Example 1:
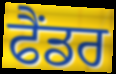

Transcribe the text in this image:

ਫੈਂਡਰ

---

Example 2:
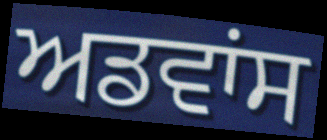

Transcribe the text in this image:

ਅਡਵਾਂਸ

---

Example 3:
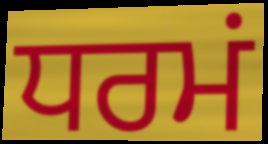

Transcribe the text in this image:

ਧਰਮਂ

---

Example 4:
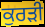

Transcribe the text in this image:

ਕੁਰੜੀ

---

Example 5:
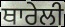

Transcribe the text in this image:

ਥਾਰੇਲੀ